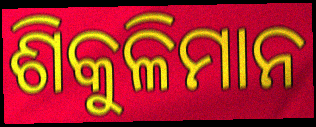
ଶିକୁଳିମାନ